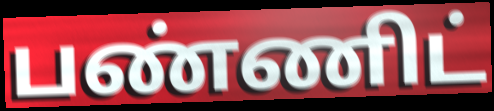
பண்ணிட்